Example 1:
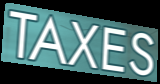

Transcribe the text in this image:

TAXES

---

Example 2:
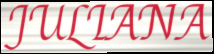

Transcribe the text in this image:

JULIANA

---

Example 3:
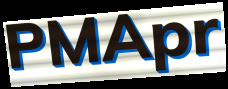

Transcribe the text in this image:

PMApr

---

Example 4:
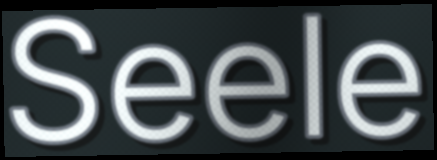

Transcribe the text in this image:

Seele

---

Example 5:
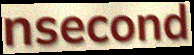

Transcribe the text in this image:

nsecond